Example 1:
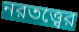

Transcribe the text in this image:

নরতত্ত্বের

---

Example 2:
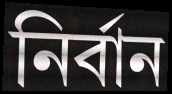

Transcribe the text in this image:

নির্বান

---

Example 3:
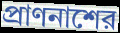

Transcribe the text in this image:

প্রাণনাশের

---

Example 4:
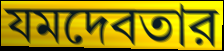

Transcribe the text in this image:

যমদেবতার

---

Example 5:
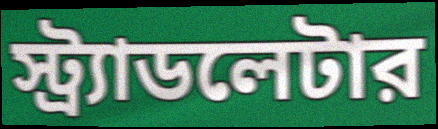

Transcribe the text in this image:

স্ট্র্যাডলেটার